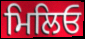
ਮਿਲਿਓ